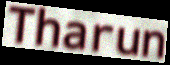
Tharun